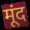
मूंद